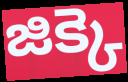
జిక్కె